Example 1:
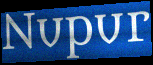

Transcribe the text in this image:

Nupur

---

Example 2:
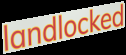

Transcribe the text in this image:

landlocked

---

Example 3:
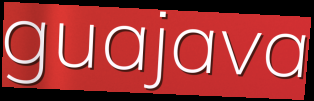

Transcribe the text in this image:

guajava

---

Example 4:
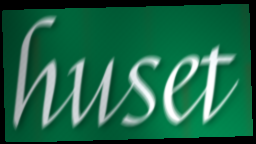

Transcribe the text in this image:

huset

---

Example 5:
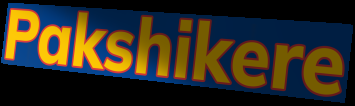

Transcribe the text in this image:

Pakshikere